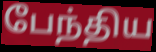
பேந்திய